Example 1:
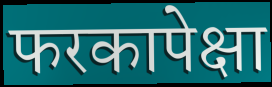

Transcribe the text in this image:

फरकापेक्षा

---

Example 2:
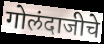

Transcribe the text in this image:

गोलंदाजीचे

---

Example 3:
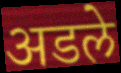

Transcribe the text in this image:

अडले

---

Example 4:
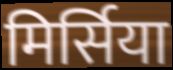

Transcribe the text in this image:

मिर्सिया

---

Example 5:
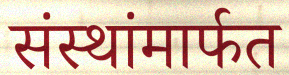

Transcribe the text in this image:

संस्थांमार्फत